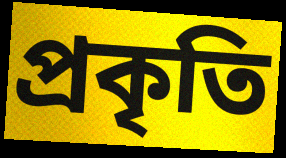
প্ৰকৃতি